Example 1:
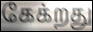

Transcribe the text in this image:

கேக்றது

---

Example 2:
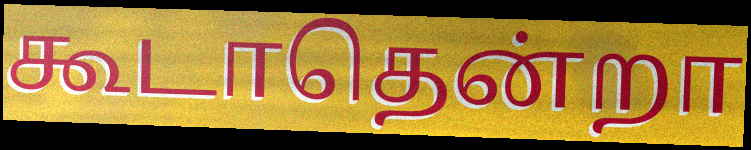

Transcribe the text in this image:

கூடாதென்றா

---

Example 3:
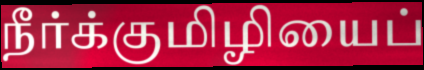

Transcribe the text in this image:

நீர்க்குமிழியைப்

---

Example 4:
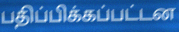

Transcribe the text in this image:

பதிப்பிக்கப்பட்டன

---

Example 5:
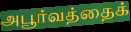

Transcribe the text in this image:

அபூர்வத்தைக்